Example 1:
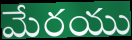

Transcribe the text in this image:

మేరయు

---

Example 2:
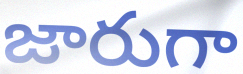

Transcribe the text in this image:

జారుగా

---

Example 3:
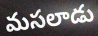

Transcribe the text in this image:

మసలాడు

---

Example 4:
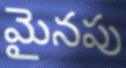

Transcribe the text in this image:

మైనపు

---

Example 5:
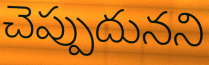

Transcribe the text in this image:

చెప్పుదునని